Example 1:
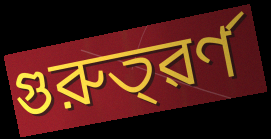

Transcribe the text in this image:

গুৰুত্ৱৰ্ণ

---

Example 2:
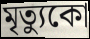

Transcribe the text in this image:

মৃত্যুকো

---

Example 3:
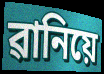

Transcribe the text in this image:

ৱানিয়ে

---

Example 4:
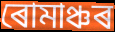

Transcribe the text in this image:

ৰোমাঞ্চৰ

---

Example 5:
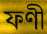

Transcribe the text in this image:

ফণী